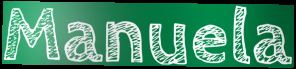
Manuela